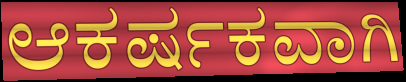
ಆಕರ್ಷಕವಾಗಿ